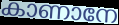
കാണാനേ